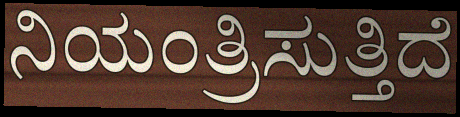
ನಿಯಂತ್ರಿಸುತ್ತಿದೆ